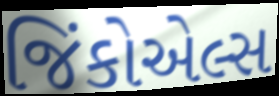
જિંકોએલ્સ